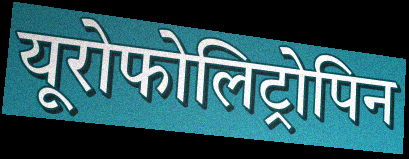
यूरोफोलिट्रोपिन